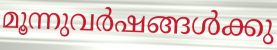
മൂന്നുവർഷങ്ങൾക്കു